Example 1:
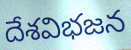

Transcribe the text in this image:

దేశవిభజన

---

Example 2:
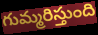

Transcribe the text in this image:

గుమ్మరిస్తుంది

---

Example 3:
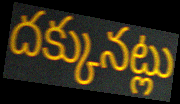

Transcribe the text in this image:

దక్కునట్లు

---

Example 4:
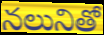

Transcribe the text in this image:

నలునితో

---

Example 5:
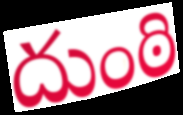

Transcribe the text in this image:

దుంఠి